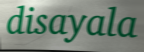
disayala